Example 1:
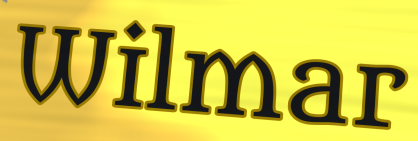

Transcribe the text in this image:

Wilmar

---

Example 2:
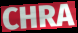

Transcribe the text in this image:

CHRA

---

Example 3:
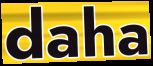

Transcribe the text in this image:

daha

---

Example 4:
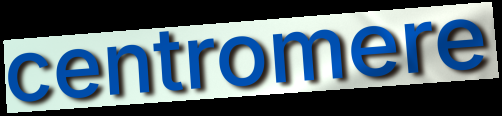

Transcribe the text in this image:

centromere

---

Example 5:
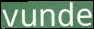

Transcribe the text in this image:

vunde